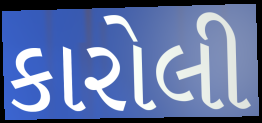
કારોલી